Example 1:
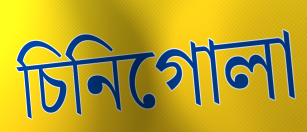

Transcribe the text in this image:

চিনিগোলা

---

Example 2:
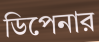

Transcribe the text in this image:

ডিপেনার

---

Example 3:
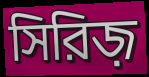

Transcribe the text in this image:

সিরিজ়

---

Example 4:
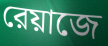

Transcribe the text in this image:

রেয়াজে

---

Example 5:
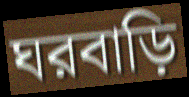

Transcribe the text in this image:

ঘরবাড়ি